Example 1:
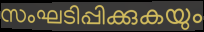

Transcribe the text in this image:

സംഘടിപ്പിക്കുകയും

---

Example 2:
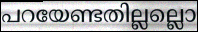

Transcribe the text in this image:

പറയേണ്ടതില്ലല്ലൊ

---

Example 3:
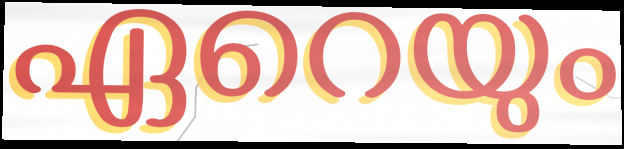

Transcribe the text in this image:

ഏറെയും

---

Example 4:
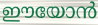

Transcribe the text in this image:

ഈയോൻ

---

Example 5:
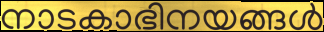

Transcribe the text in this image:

നാടകാഭിനയങ്ങൾ